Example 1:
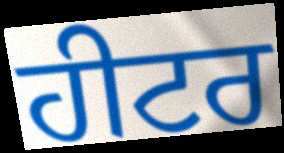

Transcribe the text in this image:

ਹੀਟਰ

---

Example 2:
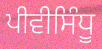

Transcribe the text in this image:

ਪੀਵੀਸਿੰਧੂ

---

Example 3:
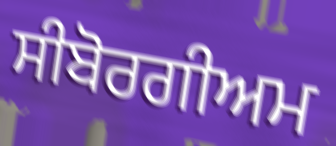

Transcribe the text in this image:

ਸੀਬੋਰਗੀਅਮ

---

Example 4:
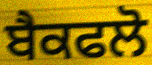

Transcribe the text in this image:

ਬੈਕਫਲੋ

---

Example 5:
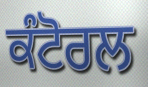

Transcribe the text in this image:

ਕੰਟੋਰਲ